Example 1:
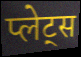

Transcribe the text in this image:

प्‍लेट्स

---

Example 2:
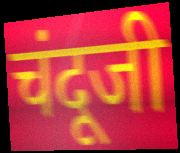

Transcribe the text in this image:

चंदूजी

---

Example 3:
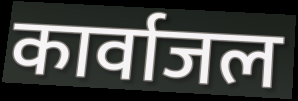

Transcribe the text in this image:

कार्वाजल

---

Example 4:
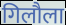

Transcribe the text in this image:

गिलौला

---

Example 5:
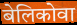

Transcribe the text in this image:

बेलिकोवा